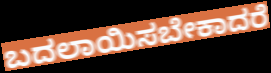
ಬದಲಾಯಿಸಬೇಕಾದರೆ